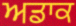
ਅਡਾਕ